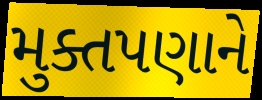
મુક્તપણાને